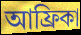
আফ্রিকা